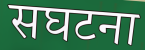
सघटना